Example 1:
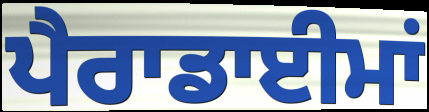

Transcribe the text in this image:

ਪੈਰਾਡਾਈਮਾਂ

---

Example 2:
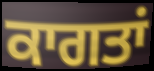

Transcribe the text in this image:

ਕਾਗਤਾਂ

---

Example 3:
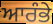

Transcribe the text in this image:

ਆਰੰਭੇ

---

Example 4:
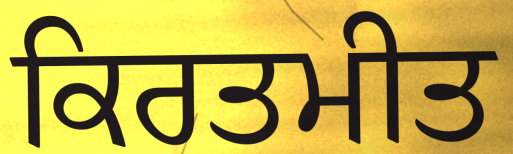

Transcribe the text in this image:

ਕਿਰਤਮੀਤ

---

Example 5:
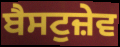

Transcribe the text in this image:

ਬੈਸਟੁਜ਼ੇਵ